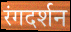
रंगदर्शन